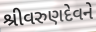
શ્રીવરુણદેવને